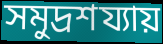
সমুদ্রশয্যায়